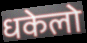
धकेलो